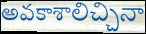
అవకాశాలిచ్చినా